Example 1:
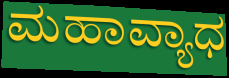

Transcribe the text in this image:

ಮಹಾವ್ಯಾಧ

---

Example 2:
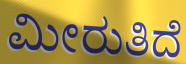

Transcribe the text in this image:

ಮೀರುತಿದೆ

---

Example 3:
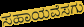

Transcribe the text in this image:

ಸಹಾಯವೆಸಗು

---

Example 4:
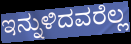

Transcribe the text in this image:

ಇನ್ನುಳಿದವರೆಲ್ಲ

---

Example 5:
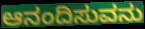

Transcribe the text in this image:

ಆನಂದಿಸುವನು